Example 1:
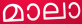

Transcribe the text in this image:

മാലാ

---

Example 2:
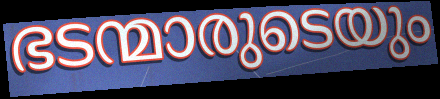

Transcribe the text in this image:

ഭടന്മാരുടെയും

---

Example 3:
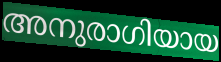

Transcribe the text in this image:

അനുരാഗിയായ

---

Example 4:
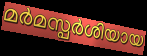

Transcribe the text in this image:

മർമസ്പർശിയായ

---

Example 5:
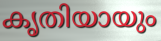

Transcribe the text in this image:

കൃതിയായും